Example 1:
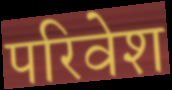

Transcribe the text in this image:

परिवेश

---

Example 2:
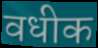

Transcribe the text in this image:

वधीक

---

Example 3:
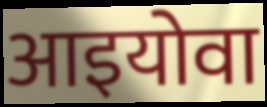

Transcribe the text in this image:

आइयोवा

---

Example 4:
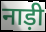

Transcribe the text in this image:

नाड़ी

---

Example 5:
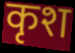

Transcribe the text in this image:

कृश